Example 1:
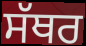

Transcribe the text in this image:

ਸੱਥਰ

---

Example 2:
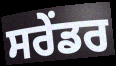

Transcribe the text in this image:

ਸਰੇਂਡਰ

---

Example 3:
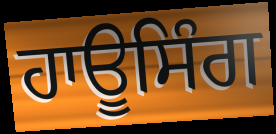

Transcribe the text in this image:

ਹਾਊਸਿੰਗ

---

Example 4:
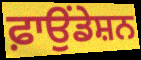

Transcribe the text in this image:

ਫ਼ਾਉਂਡੇਸ਼ਨ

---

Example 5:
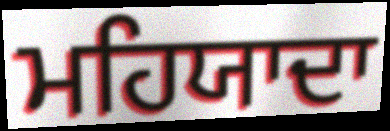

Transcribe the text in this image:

ਮਹਿਯਾਦਾ